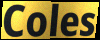
Coles